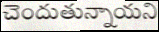
చెందుతున్నాయని